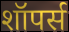
शॉपर्स